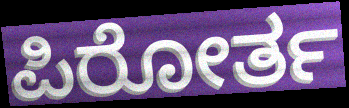
ಪಿರೋರ್ತ